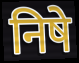
निषे